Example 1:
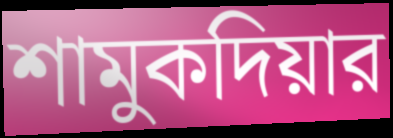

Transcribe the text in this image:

শামুকদিয়ার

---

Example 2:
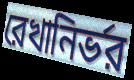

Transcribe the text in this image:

রেখানির্ভর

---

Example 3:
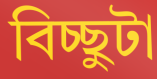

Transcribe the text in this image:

বিচ্ছুটা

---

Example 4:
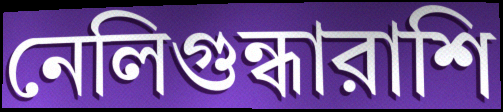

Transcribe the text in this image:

নেলিগুন্ধারাশি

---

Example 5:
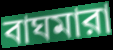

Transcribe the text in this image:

বাঘমারা